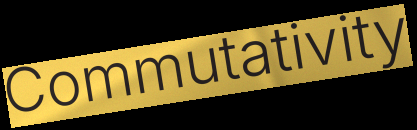
Commutativity